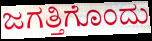
ಜಗತ್ತಿಗೊಂದು